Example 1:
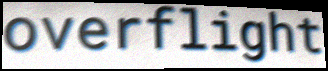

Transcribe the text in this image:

overflight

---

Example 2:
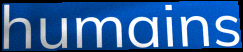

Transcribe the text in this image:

humains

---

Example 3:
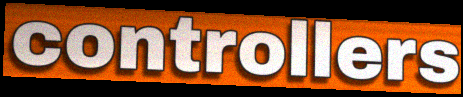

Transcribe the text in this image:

controllers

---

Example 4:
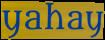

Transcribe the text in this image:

yahay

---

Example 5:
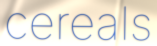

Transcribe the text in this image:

cereals